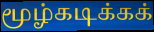
மூழ்கடிக்கக்